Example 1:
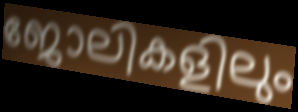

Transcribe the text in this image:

ജോലികളിലും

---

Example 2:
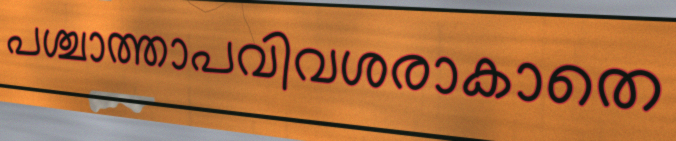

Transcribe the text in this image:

പശ്ചാത്താപവിവശരാകാതെ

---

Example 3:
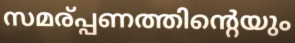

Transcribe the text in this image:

സമര്പ്പണത്തിന്റെയും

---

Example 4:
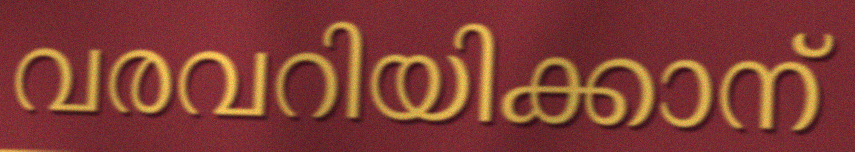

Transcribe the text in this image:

വരവറിയിക്കാന്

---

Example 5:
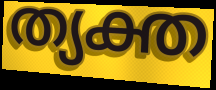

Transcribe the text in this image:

ത്യക്ത